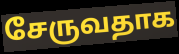
சேருவதாக